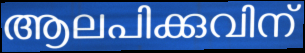
ആലപിക്കുവിന്